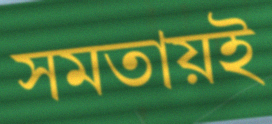
সমতায়ই